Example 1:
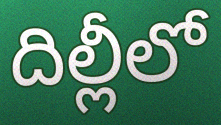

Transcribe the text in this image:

దిల్లీలో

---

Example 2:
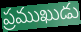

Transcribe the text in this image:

ప్రముఖుడు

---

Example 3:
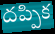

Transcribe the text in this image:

దప్పిక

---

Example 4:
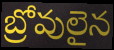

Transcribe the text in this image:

బ్రోవులైన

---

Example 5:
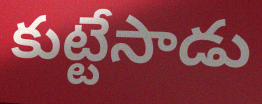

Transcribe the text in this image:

కుట్టేసాడు